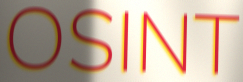
OSINT